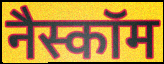
नैस्कॉम